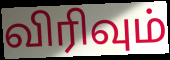
விரிவும்